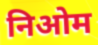
निओम